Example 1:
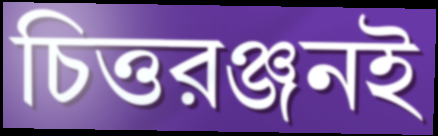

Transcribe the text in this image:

চিত্তরঞ্জনই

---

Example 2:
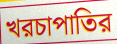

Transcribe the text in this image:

খরচাপাতির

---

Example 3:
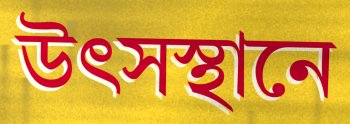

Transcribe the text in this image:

উৎসস্থানে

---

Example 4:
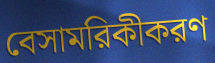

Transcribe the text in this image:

বেসামরিকীকরণ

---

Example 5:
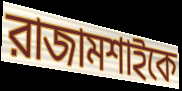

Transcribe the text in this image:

রাজামশাইকে